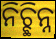
ନିଚ୍ଛିନ୍ନ